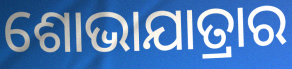
ଶୋଭାଯାତ୍ରାର